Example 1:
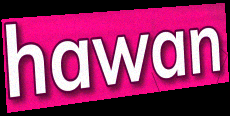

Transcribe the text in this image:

hawan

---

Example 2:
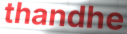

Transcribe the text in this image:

thandhe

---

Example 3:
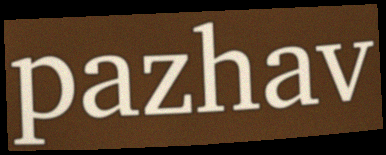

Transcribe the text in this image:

pazhav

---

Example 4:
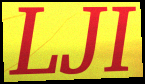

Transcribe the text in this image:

LJI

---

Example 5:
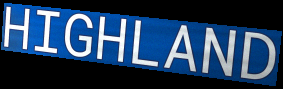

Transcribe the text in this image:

HIGHLAND